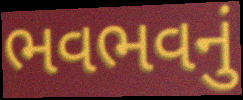
ભવભવનું